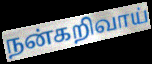
நன்கறிவாய்